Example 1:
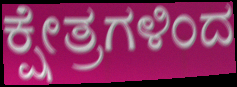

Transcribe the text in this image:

ಕ್ಷೇತ್ರಗಳಿಂದ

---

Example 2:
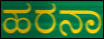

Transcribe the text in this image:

ಹರನಾ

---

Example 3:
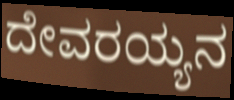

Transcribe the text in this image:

ದೇವರಯ್ಯನ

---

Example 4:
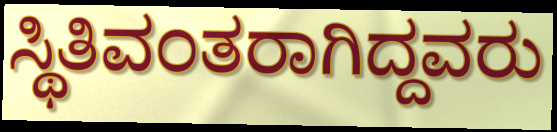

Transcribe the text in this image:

ಸ್ಥಿತಿವಂತರಾಗಿದ್ದವರು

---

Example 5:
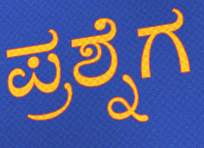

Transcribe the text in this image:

ಪ್ರಶ್ನೆಗ